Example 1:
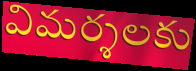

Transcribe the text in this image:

విమర్శలకు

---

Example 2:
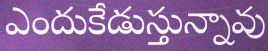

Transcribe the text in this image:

ఎందుకేడుస్తున్నావు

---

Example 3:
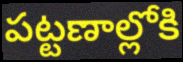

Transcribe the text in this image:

పట్టణాల్లోకి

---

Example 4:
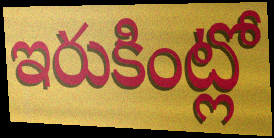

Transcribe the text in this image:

ఇరుకింట్లో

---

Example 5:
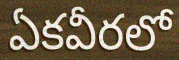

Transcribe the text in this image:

ఏకవీరలో